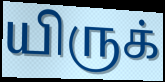
யிருக்